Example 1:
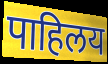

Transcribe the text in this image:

पाहिलय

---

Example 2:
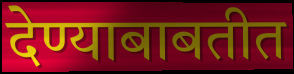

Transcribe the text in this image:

देण्याबाबतीत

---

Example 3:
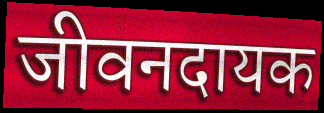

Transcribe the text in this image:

जीवनदायक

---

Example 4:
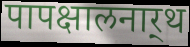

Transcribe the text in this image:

पापक्षालनार्थ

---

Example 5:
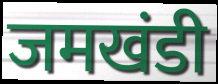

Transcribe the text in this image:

जमखंडी